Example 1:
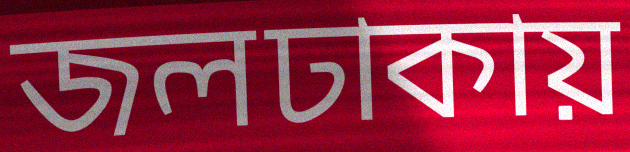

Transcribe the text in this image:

জলঢাকায়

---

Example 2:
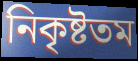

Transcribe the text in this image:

নিকৃষ্টতম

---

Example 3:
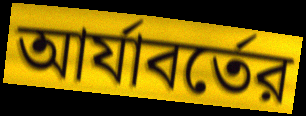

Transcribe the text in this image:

আর্যাবর্তের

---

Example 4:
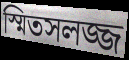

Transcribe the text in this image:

স্মিতসলজ্জ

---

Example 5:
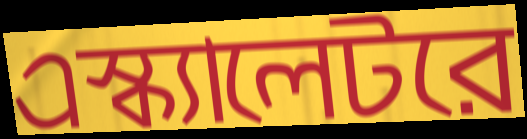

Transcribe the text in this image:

এস্ক্যালেটরে